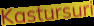
Kastursuri